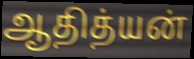
ஆதித்யன்